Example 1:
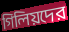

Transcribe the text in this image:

গিলিয়দের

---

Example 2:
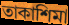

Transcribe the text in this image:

তাকাশিমা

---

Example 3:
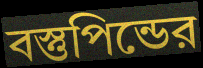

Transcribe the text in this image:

বস্তুপিন্ডের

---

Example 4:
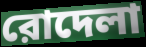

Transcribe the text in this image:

রোদেলা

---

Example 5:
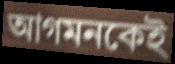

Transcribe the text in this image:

আগমনকেই